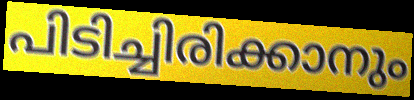
പിടിച്ചിരിക്കാനും